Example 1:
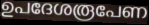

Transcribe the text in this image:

ഉപദേശരൂപേണ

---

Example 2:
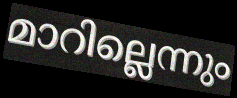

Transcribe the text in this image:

മാറില്ലെന്നും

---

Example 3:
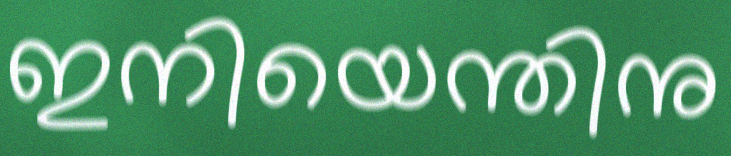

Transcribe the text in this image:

ഇനിയെന്തിനു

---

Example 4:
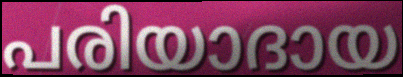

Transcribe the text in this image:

പരിയാദായ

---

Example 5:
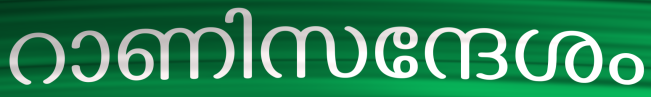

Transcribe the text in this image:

റാണിസന്ദേശം